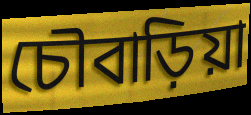
চৌবাড়িয়া